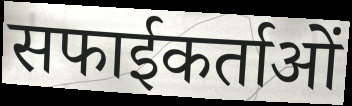
सफाईकर्ताओं